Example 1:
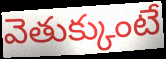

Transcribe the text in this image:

వెతుక్కుంటే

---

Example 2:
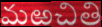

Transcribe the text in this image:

మఱచితి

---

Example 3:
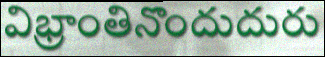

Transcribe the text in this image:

విభ్రాంతినొందుదురు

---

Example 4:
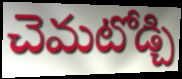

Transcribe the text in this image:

చెమటోడ్చి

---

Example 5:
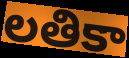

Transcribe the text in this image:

లతికా